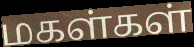
மகள்கள்